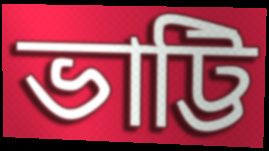
ভাট্টি